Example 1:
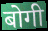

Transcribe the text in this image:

बोगी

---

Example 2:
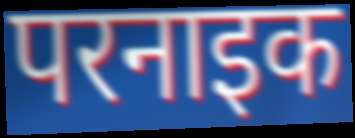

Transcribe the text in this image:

परनाइक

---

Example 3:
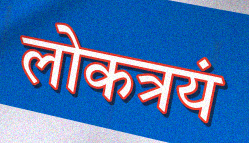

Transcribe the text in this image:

लोकत्रयं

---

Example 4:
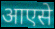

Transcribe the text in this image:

आएसे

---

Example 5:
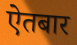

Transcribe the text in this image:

ऐतबार